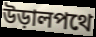
উড়ালপথে